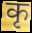
कृ